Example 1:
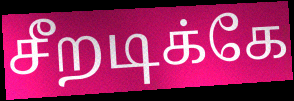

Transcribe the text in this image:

சீறடிக்கே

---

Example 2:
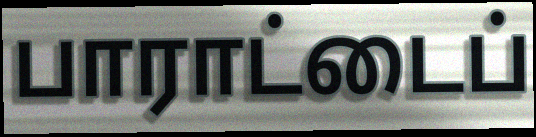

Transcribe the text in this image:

பாராட்டைப்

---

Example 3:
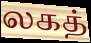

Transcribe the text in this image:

லகத்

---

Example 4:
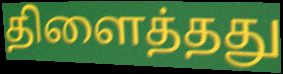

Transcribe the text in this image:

திளைத்தது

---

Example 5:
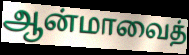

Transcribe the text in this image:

ஆன்மாவைத்